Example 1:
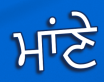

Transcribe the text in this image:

ਮਾਂਣੇ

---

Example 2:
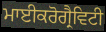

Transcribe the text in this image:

ਮਾਈਕਰੋਗ੍ਰੈਵਿਟੀ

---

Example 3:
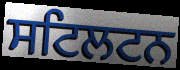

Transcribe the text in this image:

ਸਟਿਲਟਨ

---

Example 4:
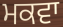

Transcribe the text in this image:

ਮਕਵਾ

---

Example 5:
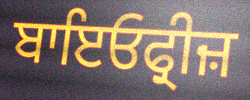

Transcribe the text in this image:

ਬਾਇਓਫ੍ਰੀਜ਼